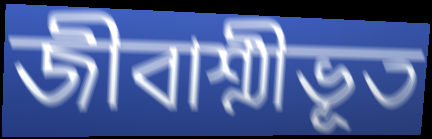
জীবাশ্মীভূত